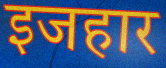
इजहार